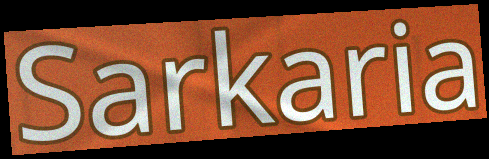
Sarkaria